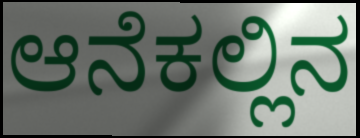
ಆನೆಕಲ್ಲಿನ